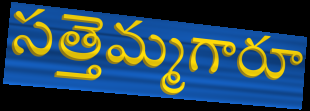
సత్తెమ్మగారూ